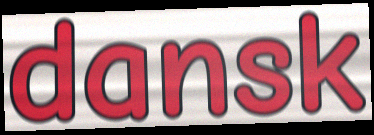
dansk